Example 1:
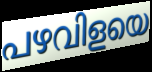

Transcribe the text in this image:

പഴവിളയെ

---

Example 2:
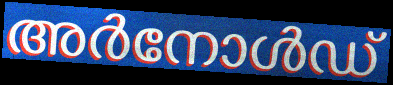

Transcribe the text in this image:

അർനോൾഡ്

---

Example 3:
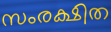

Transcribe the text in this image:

സംരക്ഷിത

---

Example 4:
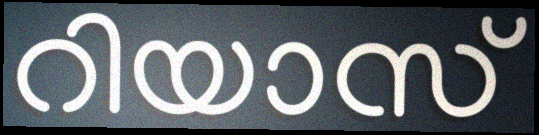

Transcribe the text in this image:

റിയാസ്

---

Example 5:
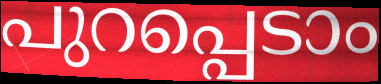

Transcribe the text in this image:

പുറപ്പെടാം